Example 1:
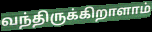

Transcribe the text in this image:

வந்திருக்கிறாளாம்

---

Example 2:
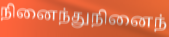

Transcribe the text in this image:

நினைந்துநினைந்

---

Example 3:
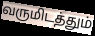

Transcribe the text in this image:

வருமிடத்தும்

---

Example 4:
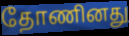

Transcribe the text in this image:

தோணினது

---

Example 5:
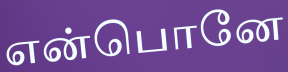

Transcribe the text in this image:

என்பொனே